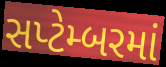
સપ્ટેમ્બરમાં